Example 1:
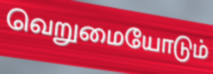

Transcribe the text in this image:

வெறுமையோடும்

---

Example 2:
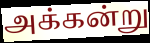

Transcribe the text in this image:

அக்கன்று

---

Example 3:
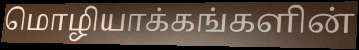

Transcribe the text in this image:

மொழியாக்கங்களின்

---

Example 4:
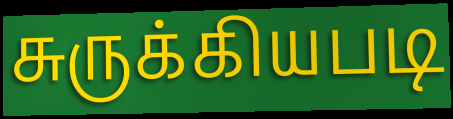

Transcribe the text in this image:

சுருக்கியபடி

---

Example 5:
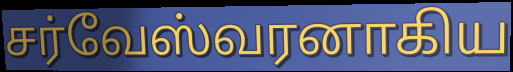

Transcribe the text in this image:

சர்வேஸ்வரனாகிய